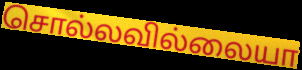
சொல்லவில்லையா